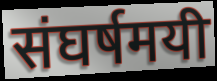
संघर्षमयी